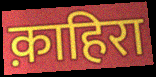
क़ाहिरा